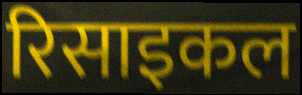
रिसाइकल